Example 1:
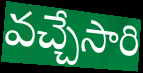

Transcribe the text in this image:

వచ్చేసారి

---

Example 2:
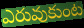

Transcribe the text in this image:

ఎరువుకుంట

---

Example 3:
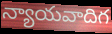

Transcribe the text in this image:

న్యాయవాదిగ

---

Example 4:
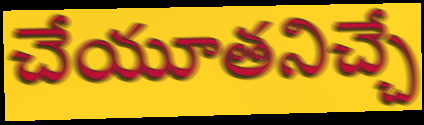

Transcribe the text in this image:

చేయూతనిచ్చే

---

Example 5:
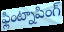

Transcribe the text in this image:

ఫ్లింట్నాపింగ్